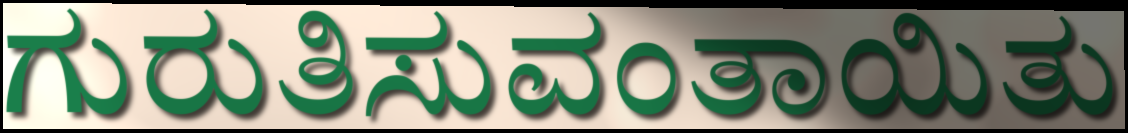
ಗುರುತಿಸುವಂತಾಯಿತು